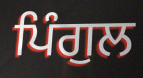
ਪਿੰਗੁਲ